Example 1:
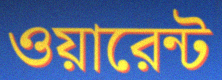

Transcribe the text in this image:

ওয়ারেন্ট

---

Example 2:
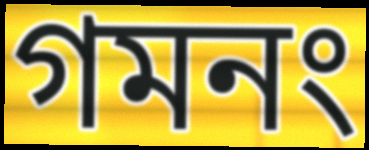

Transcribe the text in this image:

গমনং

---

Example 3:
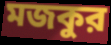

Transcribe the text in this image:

মজকুর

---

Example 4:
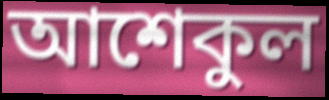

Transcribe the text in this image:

আশেকুল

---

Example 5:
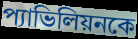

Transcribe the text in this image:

প্যাভিলিয়নকে